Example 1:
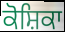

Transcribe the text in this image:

ਕੋਸ਼ਿਕਾ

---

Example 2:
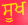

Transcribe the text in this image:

ਸੂਖ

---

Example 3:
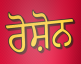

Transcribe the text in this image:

ਰੋਸ਼ੋਨ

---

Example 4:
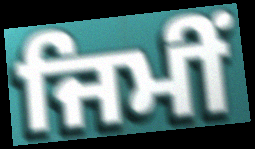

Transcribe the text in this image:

ਜਿਮੀਂ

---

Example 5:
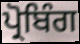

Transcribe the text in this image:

ਪ੍ਰੋਬਿੰਗ